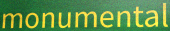
monumental